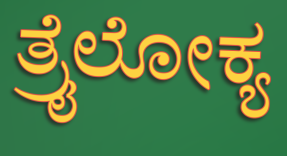
ತ್ರೈಲೋಕ್ಯ